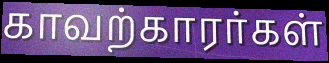
காவற்காரர்கள்